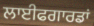
ਲਾਈਫਗਾਰਡਾਂ